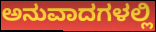
ಅನುವಾದಗಳಲ್ಲಿ